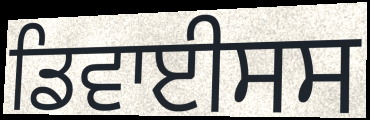
ਡਿਵਾਈਸਸ